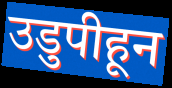
उडुपीहून